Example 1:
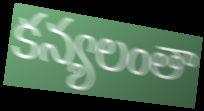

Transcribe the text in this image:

కన్యలంతా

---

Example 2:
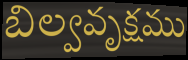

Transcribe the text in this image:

బిల్వవృక్షము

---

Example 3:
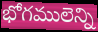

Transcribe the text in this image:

భోగములెన్ని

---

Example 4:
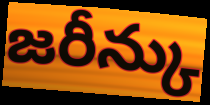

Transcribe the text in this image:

జరీన్కు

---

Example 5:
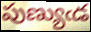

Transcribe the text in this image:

పుణ్యుఁడ